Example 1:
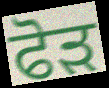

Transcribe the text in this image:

ਫੋਡ਼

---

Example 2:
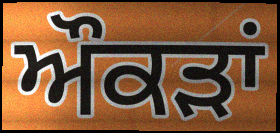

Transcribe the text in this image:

ਔਕਡ਼ਾਂ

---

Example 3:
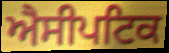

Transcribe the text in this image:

ਐਸੀਪਟਿਕ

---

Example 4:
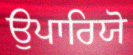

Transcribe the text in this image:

ਉਪਾਰਿਯੋ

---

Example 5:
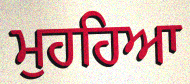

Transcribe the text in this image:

ਮੁਹਹਿਆ